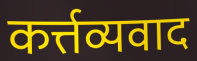
कर्त्तव्यवाद